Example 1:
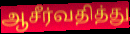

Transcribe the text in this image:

ஆசீர்வதித்து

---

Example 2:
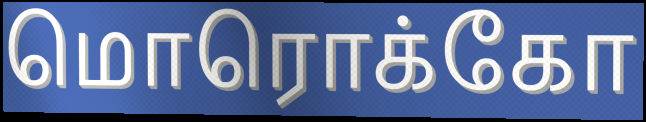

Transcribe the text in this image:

மொரொக்கோ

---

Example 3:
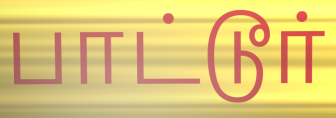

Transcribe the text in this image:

பாட்டூர்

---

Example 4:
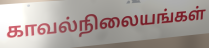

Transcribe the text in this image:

காவல்நிலையங்கள்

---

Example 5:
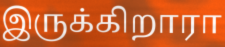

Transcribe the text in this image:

இருக்கிறாரா